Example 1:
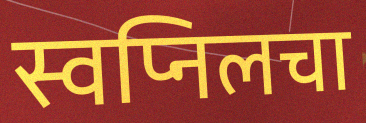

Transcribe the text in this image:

स्वप्निलचा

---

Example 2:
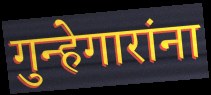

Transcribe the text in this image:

गुन्हेगारांना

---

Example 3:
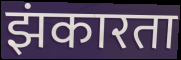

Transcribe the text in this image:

झंकारता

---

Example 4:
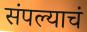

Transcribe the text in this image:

संपल्याचं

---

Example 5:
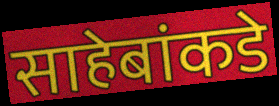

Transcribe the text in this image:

साहेबांकडे